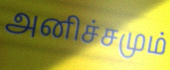
அனிச்சமும்